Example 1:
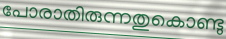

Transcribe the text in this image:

പോരാതിരുന്നതുകൊണ്ടു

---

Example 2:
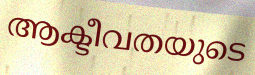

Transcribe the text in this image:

ആക്ടീവതയുടെ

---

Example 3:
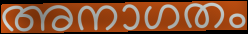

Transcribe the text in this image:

അനാഗതം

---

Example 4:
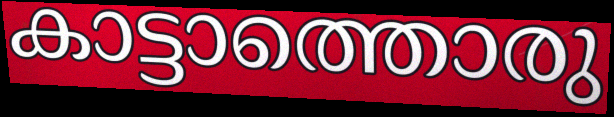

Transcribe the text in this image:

കാട്ടാത്തൊരു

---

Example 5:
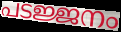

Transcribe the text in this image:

പടജ്ജനം